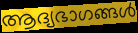
ആദ്യഭാഗങ്ങൾ